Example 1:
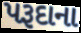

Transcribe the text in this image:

પરૂદાના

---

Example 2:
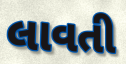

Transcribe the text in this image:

લાવતી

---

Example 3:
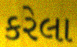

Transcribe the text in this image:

કરેલા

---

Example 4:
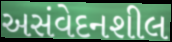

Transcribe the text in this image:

અસંવેદનશીલ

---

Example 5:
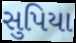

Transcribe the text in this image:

સુપિયા